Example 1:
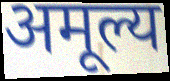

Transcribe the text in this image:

अमूल्‍य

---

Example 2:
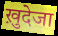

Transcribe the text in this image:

ख़ुदेजा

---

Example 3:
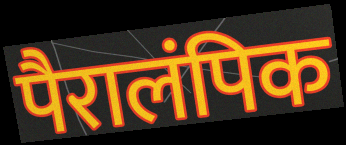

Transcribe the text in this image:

पैरालंपिक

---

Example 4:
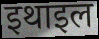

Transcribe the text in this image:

इथाइल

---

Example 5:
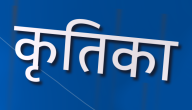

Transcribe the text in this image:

कृतिका